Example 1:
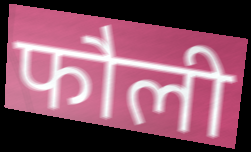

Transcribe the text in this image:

फौली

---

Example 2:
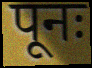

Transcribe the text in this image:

पूनः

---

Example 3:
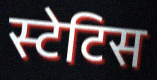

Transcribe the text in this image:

स्टेटिस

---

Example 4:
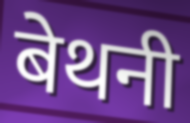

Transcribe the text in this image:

बेथनी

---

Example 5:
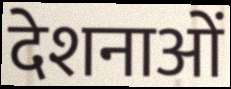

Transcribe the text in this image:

देशनाओं